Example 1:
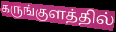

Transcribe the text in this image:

கருங்குளத்தில்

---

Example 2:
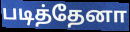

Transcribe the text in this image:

படித்தேனா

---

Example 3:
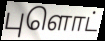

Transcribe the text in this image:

புளொட்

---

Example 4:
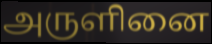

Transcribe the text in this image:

அருளினை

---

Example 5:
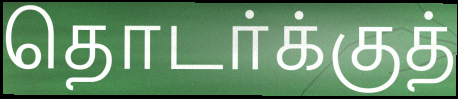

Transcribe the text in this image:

தொடர்க்குத்